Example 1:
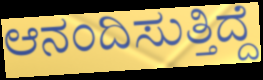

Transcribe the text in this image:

ಆನಂದಿಸುತ್ತಿದ್ದೆ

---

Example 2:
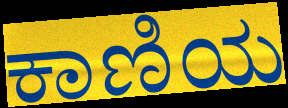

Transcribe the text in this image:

ಕಾಣಿಯ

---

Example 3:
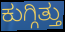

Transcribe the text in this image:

ಕುಗ್ಗಿತ್ತು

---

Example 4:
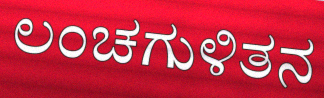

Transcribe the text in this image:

ಲಂಚಗುಳಿತನ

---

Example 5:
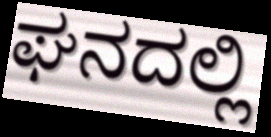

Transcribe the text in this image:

ಘನದಲ್ಲಿ